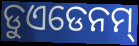
ଡୁଏଡେନମ୍